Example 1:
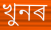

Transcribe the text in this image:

খুনৰ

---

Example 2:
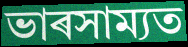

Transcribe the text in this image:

ভাৰসাম্যত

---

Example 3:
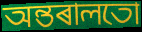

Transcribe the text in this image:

অন্তৰালতো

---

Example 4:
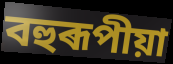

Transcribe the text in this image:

বহুৰূপীয়া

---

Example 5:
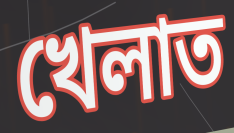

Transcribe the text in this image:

খেলাত